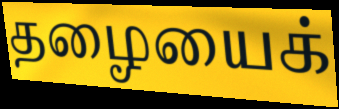
தழையைக்